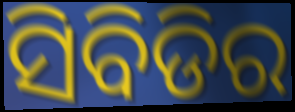
ସିବିଡିର